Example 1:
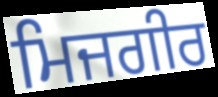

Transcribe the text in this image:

ਮਿਜਗੀਰ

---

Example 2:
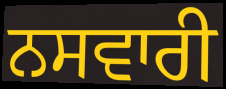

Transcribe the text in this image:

ਨਸਵਾਰੀ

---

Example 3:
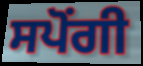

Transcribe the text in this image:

ਸਪੋਂਗੀ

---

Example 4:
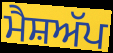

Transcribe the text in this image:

ਮੈਸ਼ਅੱਪ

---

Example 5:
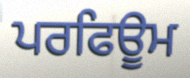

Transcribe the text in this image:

ਪਰਫਿਊਮ